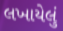
લખાયેલું